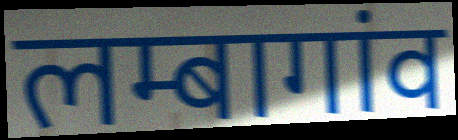
लम्बागांव